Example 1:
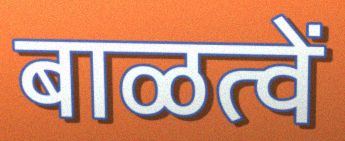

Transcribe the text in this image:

बाळत्वें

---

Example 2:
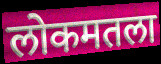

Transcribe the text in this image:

लोकमतला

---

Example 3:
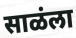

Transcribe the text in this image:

साळंला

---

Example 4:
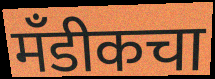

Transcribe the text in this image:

मँडीकचा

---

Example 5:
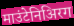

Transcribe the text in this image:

माउंटेनिअिरग